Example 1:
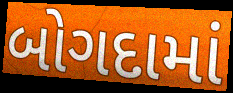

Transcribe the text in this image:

બોગદામાં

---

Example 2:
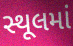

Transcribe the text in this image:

સ્થૂલમાં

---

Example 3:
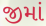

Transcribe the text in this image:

જીમાં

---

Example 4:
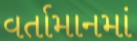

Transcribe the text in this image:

વર્તામાનમાં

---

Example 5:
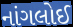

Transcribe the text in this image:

નાંગલોઈ